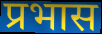
प्रभास